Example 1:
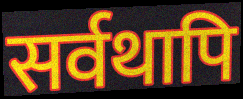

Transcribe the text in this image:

सर्वथापि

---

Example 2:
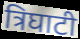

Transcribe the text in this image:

त्रिघाटी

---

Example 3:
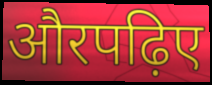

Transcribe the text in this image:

औरपढ़िए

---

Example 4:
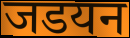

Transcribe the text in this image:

जडयन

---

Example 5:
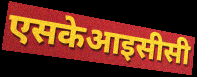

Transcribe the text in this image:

एसकेआइसीसी